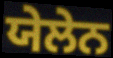
ਯੇਲੇਨ